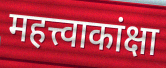
महत्त्वाकांक्षा